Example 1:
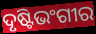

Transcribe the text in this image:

ଦୃଷ୍ଟିଭଂଗୀର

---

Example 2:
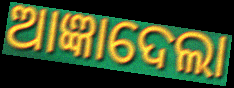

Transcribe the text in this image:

ଆଜ୍ଞାଦେଲା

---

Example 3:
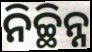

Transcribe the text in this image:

ନିଚ୍ଛିନ୍ନ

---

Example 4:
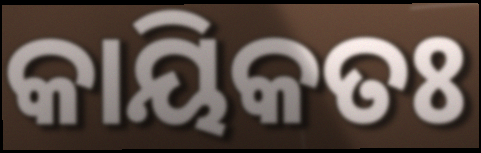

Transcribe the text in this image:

କାୟିକତଃ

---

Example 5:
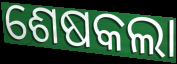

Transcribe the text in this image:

ଶେଷକଲା